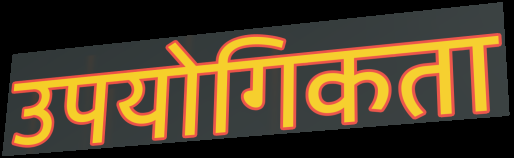
उपयोगिकता